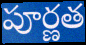
పూర్ణత